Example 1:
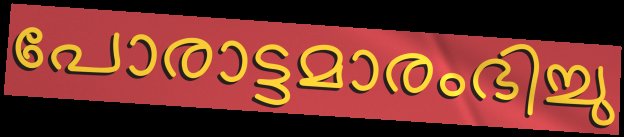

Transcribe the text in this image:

പോരാട്ടമാരംഭിച്ചു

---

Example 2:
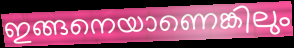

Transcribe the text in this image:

ഇങ്ങനെയാണെങ്കിലും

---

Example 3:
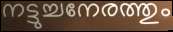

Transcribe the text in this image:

നട്ടുച്ചനേരത്തും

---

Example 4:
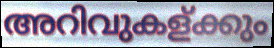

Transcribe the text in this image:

അറിവുകള്ക്കും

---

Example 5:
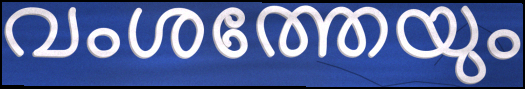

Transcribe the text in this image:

വംശത്തേയും